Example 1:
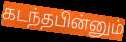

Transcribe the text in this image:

கடந்தபின்னும்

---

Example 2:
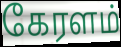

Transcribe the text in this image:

கேரளம்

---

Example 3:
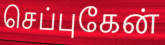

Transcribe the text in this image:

செப்புகேன்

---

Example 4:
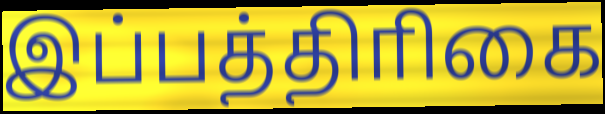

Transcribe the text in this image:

இப்பத்திரிகை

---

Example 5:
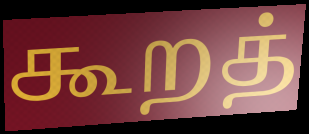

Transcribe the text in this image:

கூறத்